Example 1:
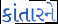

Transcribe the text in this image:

કાંતારને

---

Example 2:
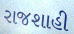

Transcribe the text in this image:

રાજશાહી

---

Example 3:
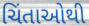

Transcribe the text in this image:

ચિંતાઓથી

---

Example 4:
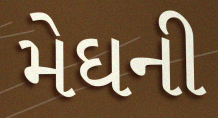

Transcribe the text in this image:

મેઘની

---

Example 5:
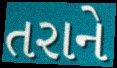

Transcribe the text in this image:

તરાને